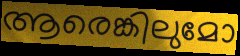
ആരെങ്കിലുമോ